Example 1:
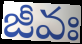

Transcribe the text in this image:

జీవః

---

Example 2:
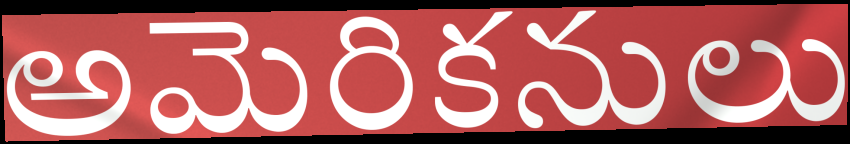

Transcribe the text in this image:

అమెరికనులు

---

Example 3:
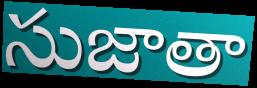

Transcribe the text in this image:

సుజాతా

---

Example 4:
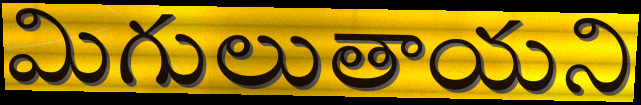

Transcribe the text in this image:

మిగులుతాయని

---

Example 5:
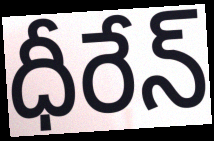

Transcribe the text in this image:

ధీరేన్